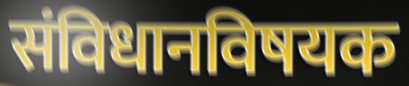
संविधानविषयक